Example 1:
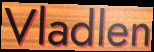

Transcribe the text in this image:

Vladlen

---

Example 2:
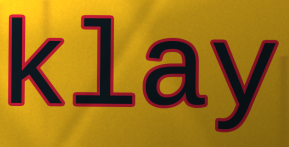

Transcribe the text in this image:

klay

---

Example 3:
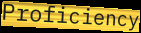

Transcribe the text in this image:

Proficiency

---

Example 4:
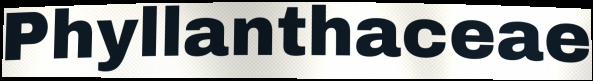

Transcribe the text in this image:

Phyllanthaceae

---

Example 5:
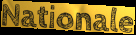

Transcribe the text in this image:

Nationale